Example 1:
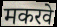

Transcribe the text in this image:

मकरवे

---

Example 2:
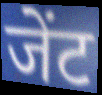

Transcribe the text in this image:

जेंट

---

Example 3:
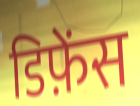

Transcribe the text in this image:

डिफ़ेंस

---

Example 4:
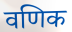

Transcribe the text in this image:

वणिक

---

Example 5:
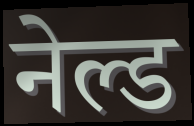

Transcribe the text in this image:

नेल्ड